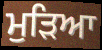
ਮੁੜਿਆ